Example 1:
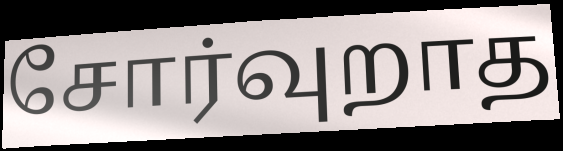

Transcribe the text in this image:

சோர்வுறாத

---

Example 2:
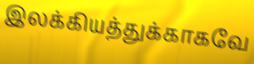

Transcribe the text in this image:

இலக்கியத்துக்காகவே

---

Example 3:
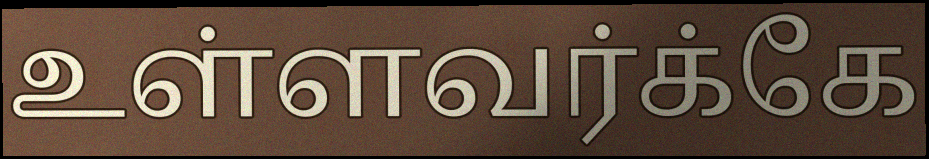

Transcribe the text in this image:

உள்ளவர்க்கே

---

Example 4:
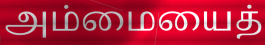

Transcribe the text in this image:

அம்மையைத்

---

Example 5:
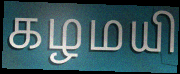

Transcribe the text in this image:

கழமயி